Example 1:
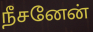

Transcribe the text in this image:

நீசனேன்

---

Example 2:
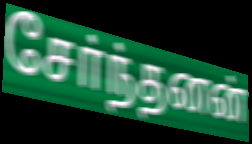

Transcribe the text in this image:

சேர்ந்தனன்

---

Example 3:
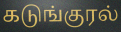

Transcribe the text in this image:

கடுங்குரல்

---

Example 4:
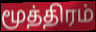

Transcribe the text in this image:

மூத்திரம்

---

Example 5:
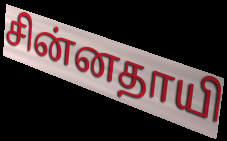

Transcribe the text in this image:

சின்னதாயி